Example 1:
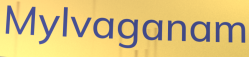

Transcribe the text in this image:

Mylvaganam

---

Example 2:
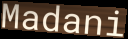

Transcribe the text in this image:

Madani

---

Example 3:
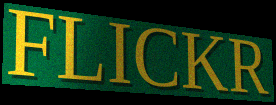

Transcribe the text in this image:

FLICKR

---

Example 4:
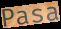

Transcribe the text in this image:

Pasa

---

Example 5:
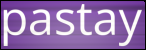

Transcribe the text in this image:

pastay